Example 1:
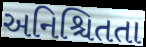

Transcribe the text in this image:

અનિશ્ચિતતા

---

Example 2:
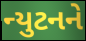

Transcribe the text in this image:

ન્યુટનને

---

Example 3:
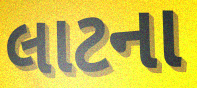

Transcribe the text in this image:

લાટના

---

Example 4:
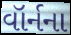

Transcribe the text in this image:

વૉર્નના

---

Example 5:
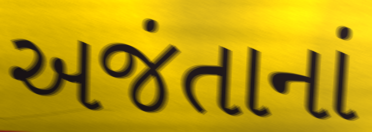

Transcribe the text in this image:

અજંતાનાં